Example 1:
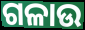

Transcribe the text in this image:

ଗଳାଉ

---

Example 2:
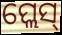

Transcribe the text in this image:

ପ୍ଲେସ୍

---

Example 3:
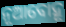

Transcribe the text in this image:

ନୂଆବୋହୂ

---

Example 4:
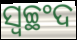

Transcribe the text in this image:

ସ୍ୱଚ୍ଛଂଦ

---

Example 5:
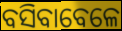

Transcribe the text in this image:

ବସିବାବେଳେ